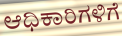
ಆಧಿಕಾರಿಗಳಿಗೆ